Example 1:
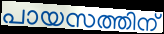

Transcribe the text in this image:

പായസത്തിന്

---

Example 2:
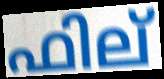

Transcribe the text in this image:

ഫില്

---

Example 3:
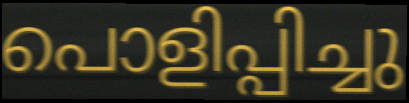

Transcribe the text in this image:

പൊളിപ്പിച്ചു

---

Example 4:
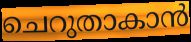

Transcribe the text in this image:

ചെറുതാകാൻ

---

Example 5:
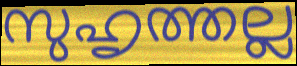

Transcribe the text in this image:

സുഹൃത്തല്ല